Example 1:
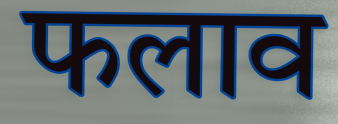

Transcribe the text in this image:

फलाव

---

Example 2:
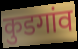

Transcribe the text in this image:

कुडगांव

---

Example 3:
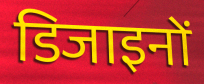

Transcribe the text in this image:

डिजाइनों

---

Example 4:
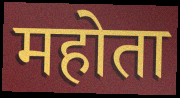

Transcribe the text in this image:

महोता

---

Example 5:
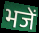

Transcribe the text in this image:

भजें